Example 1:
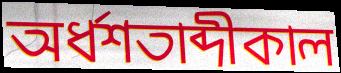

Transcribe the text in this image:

অর্ধশতাব্দীকাল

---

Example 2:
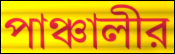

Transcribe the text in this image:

পাঞ্চালীর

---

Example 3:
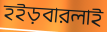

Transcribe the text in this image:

হইড়বারলাই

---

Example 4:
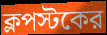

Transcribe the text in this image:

ক্লপস্টকের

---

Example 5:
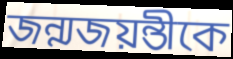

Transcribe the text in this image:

জন্মজয়ন্তীকে